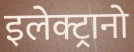
इलेक्ट्रानो